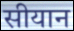
सीयान